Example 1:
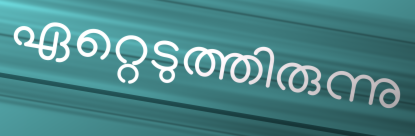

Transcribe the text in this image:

ഏറ്റെടുത്തിരുന്നു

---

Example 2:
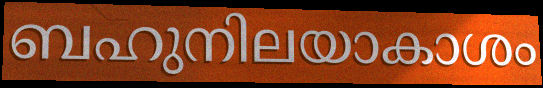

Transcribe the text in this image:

ബഹുനിലയാകാശം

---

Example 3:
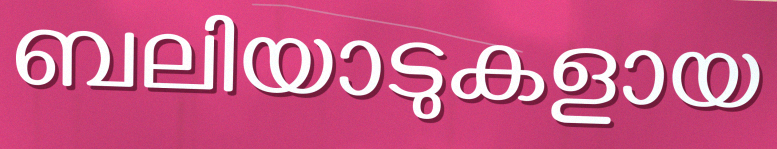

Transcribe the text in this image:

ബലിയാടുകളായ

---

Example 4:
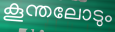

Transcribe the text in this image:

കൂന്തലോടും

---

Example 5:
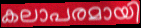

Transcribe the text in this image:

കലാപരമായി